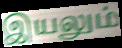
இயலும்